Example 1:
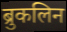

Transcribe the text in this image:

ब्रुकलिन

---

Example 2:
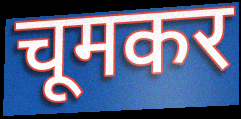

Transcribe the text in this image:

चूमकर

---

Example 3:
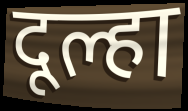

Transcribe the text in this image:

दूल्हा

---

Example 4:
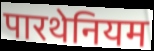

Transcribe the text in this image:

पारथेनियम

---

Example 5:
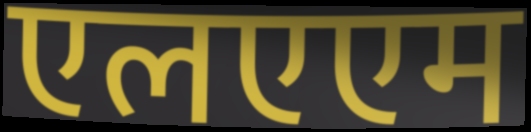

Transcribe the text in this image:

एलएएम